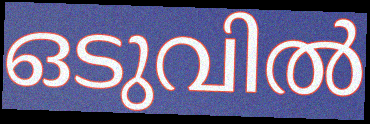
ഒടുവിൽ